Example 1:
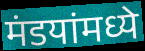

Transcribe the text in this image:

मंडयांमध्ये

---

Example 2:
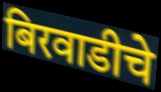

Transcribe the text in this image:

बिरवाडीचे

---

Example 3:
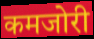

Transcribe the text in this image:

कमजोरी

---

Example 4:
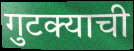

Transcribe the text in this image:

गुटक्याची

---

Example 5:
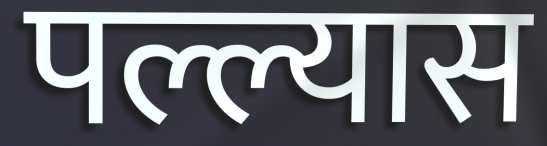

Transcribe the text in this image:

पल्ल्यास